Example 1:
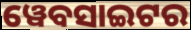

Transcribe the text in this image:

ୱେବସାଇଟର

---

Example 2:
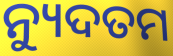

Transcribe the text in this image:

ନ୍ୟୁଦତମ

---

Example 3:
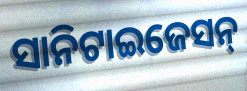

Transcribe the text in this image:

ସାନିଟାଇଜେସନ୍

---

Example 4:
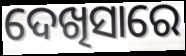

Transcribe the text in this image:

ଦେଖିସାରେ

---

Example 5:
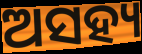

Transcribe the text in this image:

ଅସହ୍ୟ